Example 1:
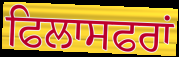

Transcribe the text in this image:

ਫਿਲਾਸਫਰਾਂ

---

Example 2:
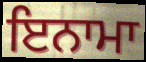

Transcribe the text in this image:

ਇਨਾਮਾ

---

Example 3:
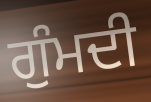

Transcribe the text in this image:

ਗੁੰਮਦੀ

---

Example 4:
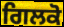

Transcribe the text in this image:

ਗਿਲਕੋ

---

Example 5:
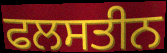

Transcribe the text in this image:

ਫਲਸਤੀਨ